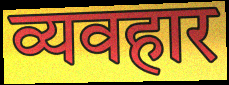
व्‍यवहार